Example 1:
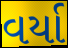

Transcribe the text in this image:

વર્યા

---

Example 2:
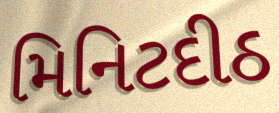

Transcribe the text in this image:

મિનિટદીઠ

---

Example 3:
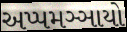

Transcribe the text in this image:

અપ્પમઞ્ઞાયો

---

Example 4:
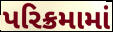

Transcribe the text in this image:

પરિક્રમામાં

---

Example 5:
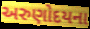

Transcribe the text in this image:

અરુણોદયના